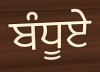
ਬੰਧੂਏ